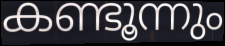
കണ്ടൂന്നും